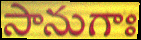
సానుగాః